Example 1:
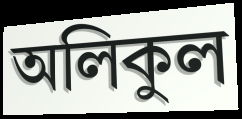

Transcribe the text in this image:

অলিকুল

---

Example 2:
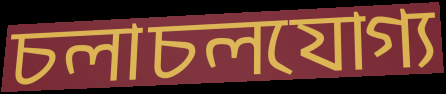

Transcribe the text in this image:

চলাচলযোগ্য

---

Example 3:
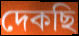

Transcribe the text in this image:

দেকছি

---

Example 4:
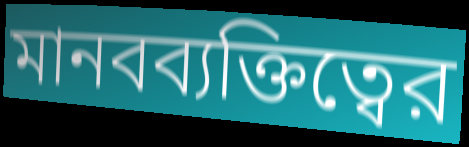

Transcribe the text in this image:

মানবব্যক্তিত্বের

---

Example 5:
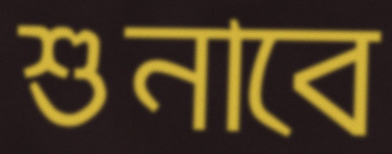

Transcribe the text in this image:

শুনাবে